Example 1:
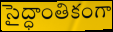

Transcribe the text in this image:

సైద్ధాంతికంగా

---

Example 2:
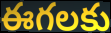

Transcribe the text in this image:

ఈగలకు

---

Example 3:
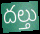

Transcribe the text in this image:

దల్తు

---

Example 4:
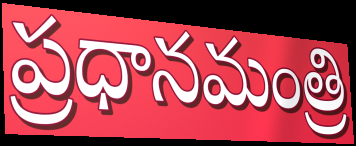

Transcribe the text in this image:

ప్రధానమంత్రి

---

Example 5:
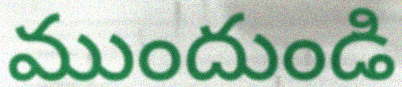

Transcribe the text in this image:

ముందుండి